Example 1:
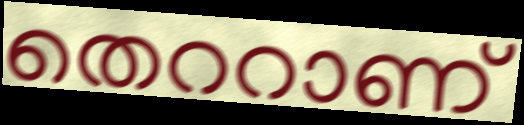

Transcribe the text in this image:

തെററാണ്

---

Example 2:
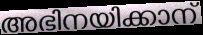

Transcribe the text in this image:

അഭിനയിക്കാന്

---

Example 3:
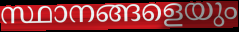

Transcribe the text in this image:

സ്ഥാനങ്ങളെയും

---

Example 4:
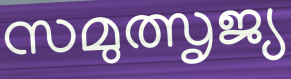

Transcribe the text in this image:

സമുത്സൃജ്യ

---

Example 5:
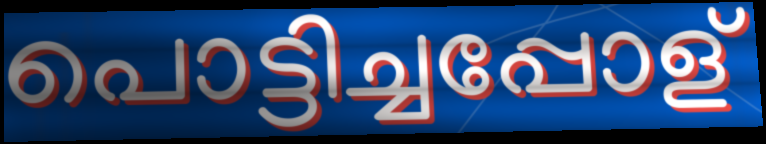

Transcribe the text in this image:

പൊട്ടിച്ചപ്പോള്